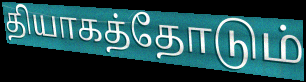
தியாகத்தோடும்